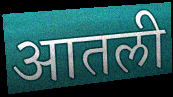
आतली